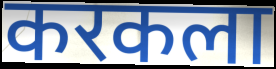
करकला